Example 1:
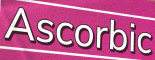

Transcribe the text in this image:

Ascorbic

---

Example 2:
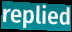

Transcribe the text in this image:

replied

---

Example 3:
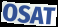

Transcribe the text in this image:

OSAT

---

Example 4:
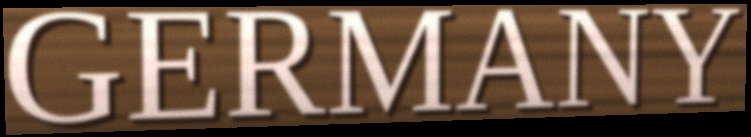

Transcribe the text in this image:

GERMANY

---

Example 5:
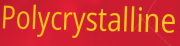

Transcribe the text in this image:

Polycrystalline